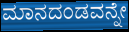
ಮಾನದಂಡವನ್ನೇ